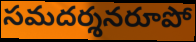
సమదర్శనరూపో